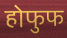
होफुफ